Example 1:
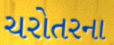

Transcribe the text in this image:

ચરોતરના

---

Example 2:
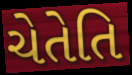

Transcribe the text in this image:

ચેતેતિ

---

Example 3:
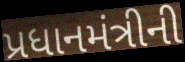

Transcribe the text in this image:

પ્રધાનમંત્રીની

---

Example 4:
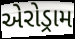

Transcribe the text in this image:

એરોડ્રામ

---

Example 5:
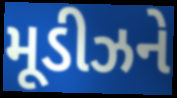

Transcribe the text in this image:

મૂડીઝને